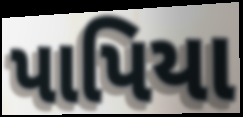
પાપિયા